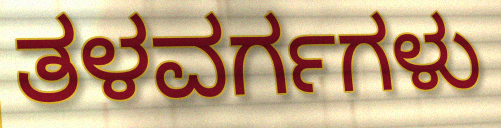
ತಳವರ್ಗಗಳು